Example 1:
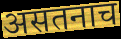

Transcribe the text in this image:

असतनाच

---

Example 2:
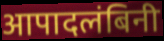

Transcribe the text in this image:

आपादलंबिनी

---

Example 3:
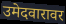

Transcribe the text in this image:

उमेदवारावर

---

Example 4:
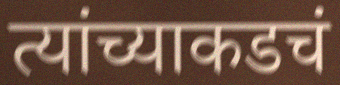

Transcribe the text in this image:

त्यांच्याकडचं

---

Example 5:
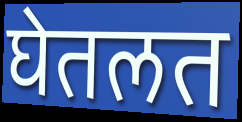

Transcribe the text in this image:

घेतलत